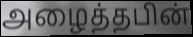
அழைத்தபின்